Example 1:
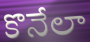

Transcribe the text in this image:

కొనేలా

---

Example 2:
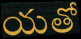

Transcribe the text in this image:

యతో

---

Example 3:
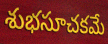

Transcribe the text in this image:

శుభసూచకమే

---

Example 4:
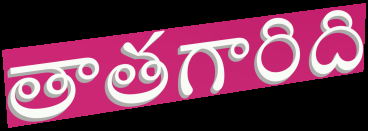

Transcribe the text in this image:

తాతగారిది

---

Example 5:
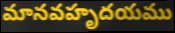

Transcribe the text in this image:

మానవహృదయము